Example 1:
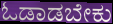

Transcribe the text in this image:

ಓಡಾಡಬೇಕು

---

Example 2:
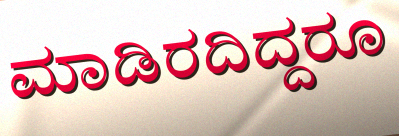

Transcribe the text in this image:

ಮಾಡಿರದಿದ್ದರೂ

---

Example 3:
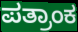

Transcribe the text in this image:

ಪತ್ರಾಂಕ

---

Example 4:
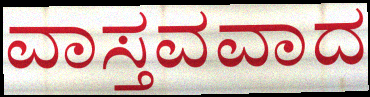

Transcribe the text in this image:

ವಾಸ್ತವವಾದ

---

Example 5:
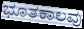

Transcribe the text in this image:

ಭೂತಕಾಲವು